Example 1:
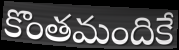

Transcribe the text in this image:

కొంతమందికే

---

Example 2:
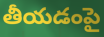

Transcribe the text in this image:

తీయడంపై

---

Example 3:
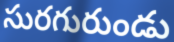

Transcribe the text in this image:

సురగురుండు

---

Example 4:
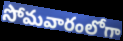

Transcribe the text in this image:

సోమవారంలోగా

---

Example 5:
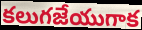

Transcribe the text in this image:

కలుగజేయుగాక